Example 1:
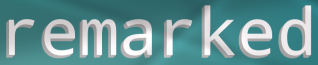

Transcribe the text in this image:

remarked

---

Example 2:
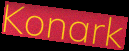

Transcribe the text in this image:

Konark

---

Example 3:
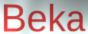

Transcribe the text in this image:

Beka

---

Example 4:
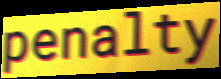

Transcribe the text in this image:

penalty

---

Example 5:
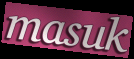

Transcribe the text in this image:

masuk